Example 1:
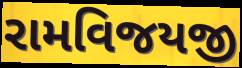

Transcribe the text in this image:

રામવિજયજી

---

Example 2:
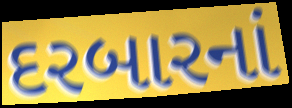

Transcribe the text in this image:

દરબારનાં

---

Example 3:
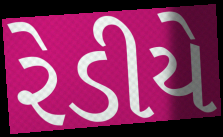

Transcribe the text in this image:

રેડીયે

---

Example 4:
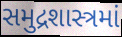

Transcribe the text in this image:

સમુદ્રશાસ્ત્રમાં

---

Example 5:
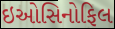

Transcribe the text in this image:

ઇઓસિનોફિલ